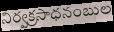
నిర్వక్రసాధనంబుల